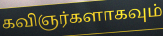
கவிஞர்களாகவும்